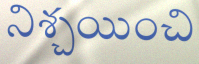
నిశ్చయించి